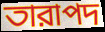
তারাপদ